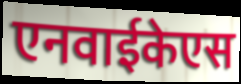
एनवाईकेएस